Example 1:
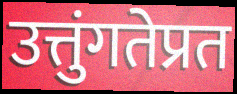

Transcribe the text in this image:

उत्तुंगतेप्रत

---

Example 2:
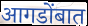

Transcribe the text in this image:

आगडोंबात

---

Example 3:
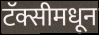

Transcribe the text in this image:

टॅक्सीमधून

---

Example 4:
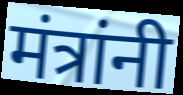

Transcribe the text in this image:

मंत्रांनी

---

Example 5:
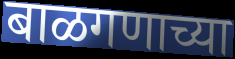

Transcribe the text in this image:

बाळगणाच्या